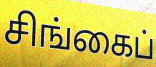
சிங்கைப்